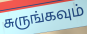
சுருங்கவும்